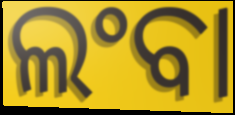
ଲଂବା